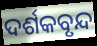
ଦର୍ଶକବୃନ୍ଦ